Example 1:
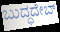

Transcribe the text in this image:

ಬುದ್ಧದೇಬ್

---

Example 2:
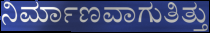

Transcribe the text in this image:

ನಿರ್ಮಾಣವಾಗುತಿತ್ತು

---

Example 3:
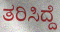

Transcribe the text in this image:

ತರಿಸಿದ್ದೆ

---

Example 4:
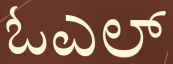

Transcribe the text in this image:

ಓಎಲ್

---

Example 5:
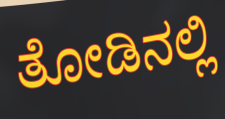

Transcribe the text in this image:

ತೋಡಿನಲ್ಲಿ